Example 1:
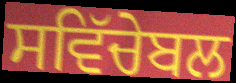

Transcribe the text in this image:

ਸਵਿੱਚੇਬਲ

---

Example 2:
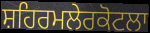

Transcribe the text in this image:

ਸ਼ਹਿਰਮਲੇਰਕੋਟਲਾ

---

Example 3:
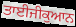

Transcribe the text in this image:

ਤਾਈਜੀਕੁਆਨ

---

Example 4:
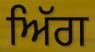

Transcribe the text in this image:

ਅਿੱਗ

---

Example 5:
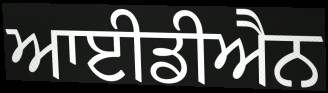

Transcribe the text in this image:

ਆਈਡੀਐਨ